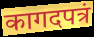
कागदपत्रं